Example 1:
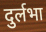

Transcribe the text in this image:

दुर्लभा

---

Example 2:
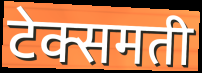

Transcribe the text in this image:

टेक्समती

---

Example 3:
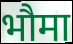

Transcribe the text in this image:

भौमा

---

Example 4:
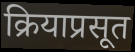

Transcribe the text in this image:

क्रियाप्रसूत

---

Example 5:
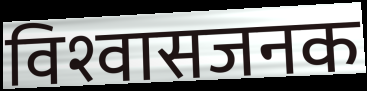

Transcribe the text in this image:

विश्वासजनक